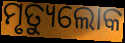
ମୃତ୍ୟୁଲୋକ